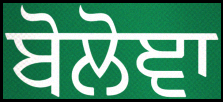
ਬੋਲੋਞਾ